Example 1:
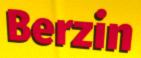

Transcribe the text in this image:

Berzin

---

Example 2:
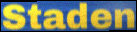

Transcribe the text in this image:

Staden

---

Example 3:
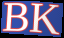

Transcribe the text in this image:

BK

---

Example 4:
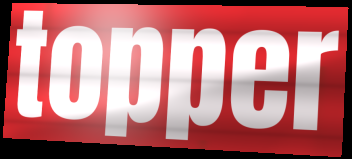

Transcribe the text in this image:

topper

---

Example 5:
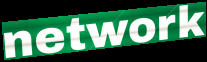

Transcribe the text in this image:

network